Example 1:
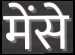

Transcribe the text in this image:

मेंसे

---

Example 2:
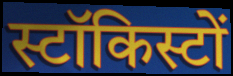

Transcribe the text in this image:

स्टॉकिस्टों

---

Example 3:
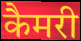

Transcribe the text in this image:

कैमरी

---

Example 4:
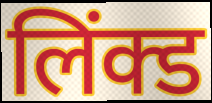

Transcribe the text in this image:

लिंक्ड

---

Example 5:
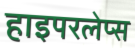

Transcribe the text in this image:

हाइपरलेप्स